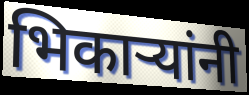
भिकाऱ्यांनी